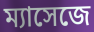
ম্যাসেজে